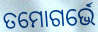
ତମୋଗର୍ଭେ